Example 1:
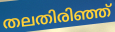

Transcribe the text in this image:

തലതിരിഞ്ഞ്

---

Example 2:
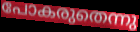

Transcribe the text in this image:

പോകരുതെന്നു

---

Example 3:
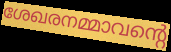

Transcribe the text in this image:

ശേഖരനമ്മാവന്റെ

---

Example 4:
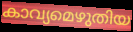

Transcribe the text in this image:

കാവ്യമെഴുതിയ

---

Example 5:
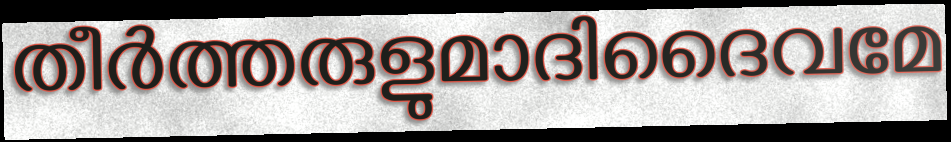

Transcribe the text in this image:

തീർത്തരുളുമാദിദൈവമേ